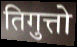
तिगुत्तो